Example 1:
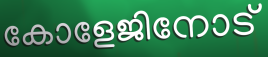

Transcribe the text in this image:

കോളേജിനോട്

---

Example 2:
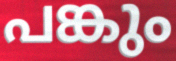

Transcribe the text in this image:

പങ്കും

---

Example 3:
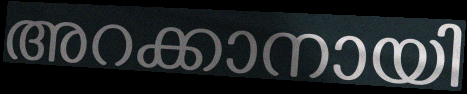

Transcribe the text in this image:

അറക്കാനായി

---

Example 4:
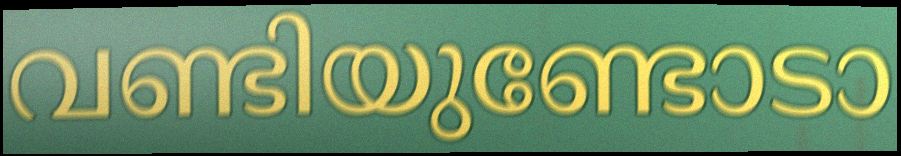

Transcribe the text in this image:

വണ്ടിയുണ്ടോടാ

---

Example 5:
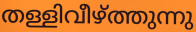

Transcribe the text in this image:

തള്ളിവീഴ്ത്തുന്നു